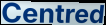
Centred